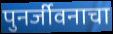
पुनर्जीवनाचा